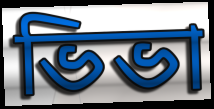
ভিভা